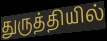
துருத்தியில்